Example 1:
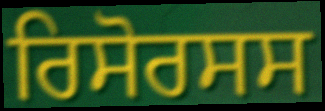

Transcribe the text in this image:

ਰਿਸੋਰਸਸ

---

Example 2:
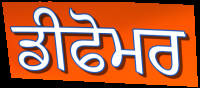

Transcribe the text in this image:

ਡੀਫੋਮਰ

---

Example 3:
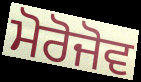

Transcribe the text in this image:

ਮੋਰੋਜੋਵ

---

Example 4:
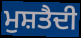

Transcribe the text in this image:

ਮੁਸ਼ਤੈਦੀ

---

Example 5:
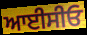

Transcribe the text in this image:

ਆਈਸੀਓ